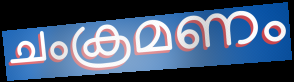
ചംക്രമണം